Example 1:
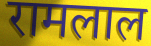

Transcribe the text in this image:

रामलाल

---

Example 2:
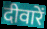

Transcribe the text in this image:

दीवारें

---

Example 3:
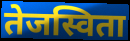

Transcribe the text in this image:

तेजस्विता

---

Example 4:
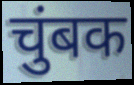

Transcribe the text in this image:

चुंबक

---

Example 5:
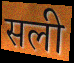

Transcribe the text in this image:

सली